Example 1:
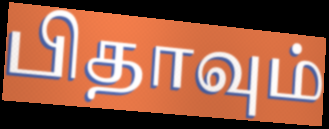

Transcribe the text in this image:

பிதாவும்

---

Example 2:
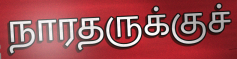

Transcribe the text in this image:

நாரதருக்குச்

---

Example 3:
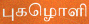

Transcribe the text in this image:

புகழொளி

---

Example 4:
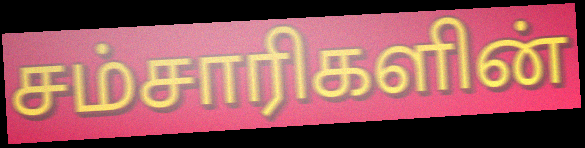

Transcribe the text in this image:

சம்சாரிகளின்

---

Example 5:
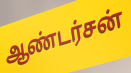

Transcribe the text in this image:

ஆண்டர்சன்